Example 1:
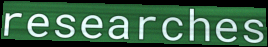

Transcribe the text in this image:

researches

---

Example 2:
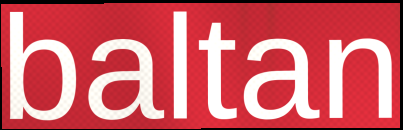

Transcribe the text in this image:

baltan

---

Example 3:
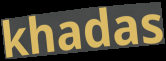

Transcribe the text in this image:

khadas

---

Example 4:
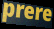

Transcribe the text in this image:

prere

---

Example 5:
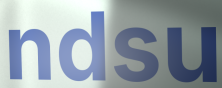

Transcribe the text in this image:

ndsu